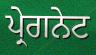
ਪ੍ਰੇਗਨੇਟ